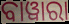
ବାୱାରା